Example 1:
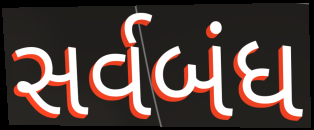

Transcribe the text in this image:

સર્વબંધ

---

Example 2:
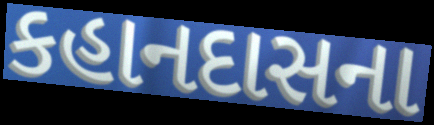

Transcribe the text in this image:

કહાનદાસના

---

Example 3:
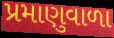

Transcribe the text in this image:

પ્રમાણુવાળા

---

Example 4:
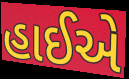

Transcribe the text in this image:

હાઈએ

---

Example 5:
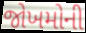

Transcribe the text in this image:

જોખમોની